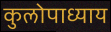
कुलोपाध्याय